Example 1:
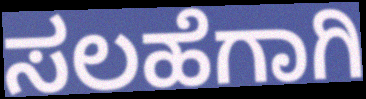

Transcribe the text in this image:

ಸಲಹೆಗಾಗಿ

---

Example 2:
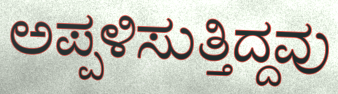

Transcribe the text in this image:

ಅಪ್ಪಳಿಸುತ್ತಿದ್ದವು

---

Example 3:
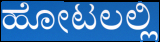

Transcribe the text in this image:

ಹೋಟಲಲ್ಲಿ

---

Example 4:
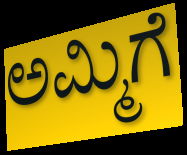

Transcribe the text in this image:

ಅಮ್ಮಿಗೆ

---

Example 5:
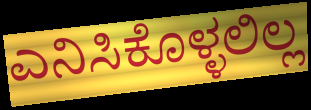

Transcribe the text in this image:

ಎನಿಸಿಕೊಳ್ಳಲಿಲ್ಲ